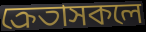
ক্ৰেতাসকলে